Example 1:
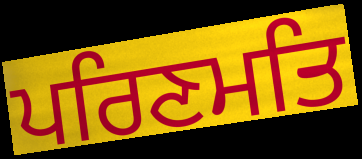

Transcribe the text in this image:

ਪਰਿਣਮਤਿ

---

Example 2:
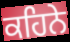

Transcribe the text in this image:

ਕਹਿਨੇ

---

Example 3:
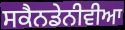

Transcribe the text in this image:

ਸਕੈਨਡੇਨੀਵੀਆ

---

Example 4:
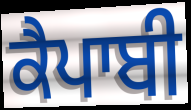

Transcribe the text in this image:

ਕੈਪਾਬੀ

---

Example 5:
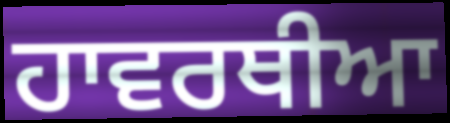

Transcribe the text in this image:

ਹਾਵਰਥੀਆ